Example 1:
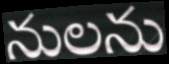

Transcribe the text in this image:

నులను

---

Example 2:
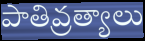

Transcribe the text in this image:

పాతివ్రత్యాలు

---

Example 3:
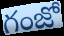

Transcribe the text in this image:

గంజో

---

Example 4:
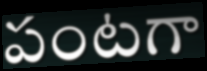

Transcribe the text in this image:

పంటగా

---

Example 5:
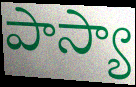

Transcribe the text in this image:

పాస్యా